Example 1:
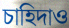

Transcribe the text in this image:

চাহিদাও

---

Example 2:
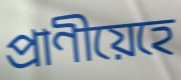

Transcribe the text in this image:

প্ৰাণীয়েহে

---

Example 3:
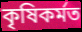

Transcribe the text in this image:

কৃষিকৰ্মত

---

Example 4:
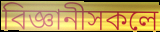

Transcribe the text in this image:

বিজ্ঞানীসকলে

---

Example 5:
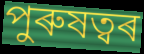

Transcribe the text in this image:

পুৰুষত্বৰ